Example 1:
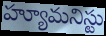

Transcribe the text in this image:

హ్యూమనిస్టు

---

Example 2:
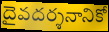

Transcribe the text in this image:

దైవదర్శనానికో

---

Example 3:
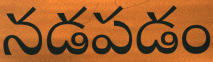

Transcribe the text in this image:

నడపడం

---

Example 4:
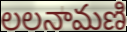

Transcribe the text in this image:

లలనామణి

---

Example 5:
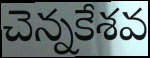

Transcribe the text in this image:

చెన్నకేశవ